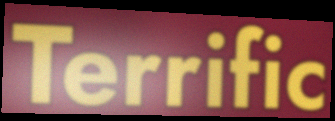
Terrific